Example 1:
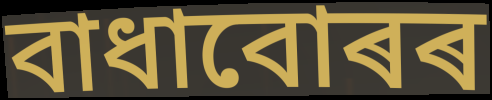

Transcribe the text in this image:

বাধাবোৰৰ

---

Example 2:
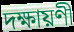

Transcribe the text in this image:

দক্ষায়ণী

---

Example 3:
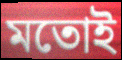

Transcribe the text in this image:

মতোই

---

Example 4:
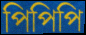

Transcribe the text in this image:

পিপিপি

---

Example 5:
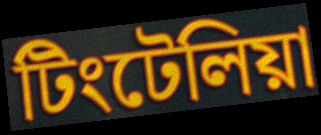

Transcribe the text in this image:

টিংটেলিয়া